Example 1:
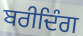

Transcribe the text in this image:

ਬਰੀਦਿੰਗ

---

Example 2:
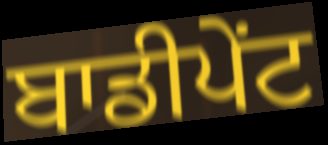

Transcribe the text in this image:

ਬਾਡੀਪੇਂਟ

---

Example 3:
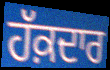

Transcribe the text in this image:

ਹੱਕ਼ਦਾਰ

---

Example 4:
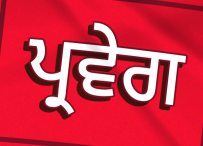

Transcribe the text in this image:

ਪ੍ਰਵੇਗ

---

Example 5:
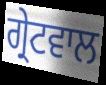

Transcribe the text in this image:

ਗ੍ਰੇਟਵਾਲ